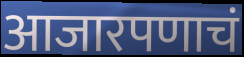
आजारपणाचं